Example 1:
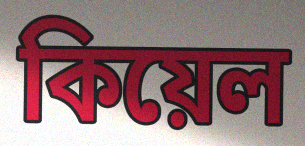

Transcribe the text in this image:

কিয়েল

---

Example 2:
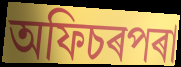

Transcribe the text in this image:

অফিচৰপৰা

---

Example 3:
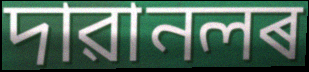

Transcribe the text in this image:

দাৱানলৰ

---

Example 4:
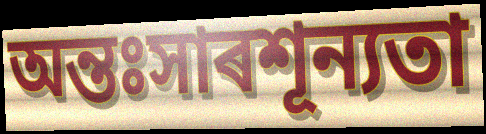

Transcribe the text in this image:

অন্তঃসাৰশূন্যতা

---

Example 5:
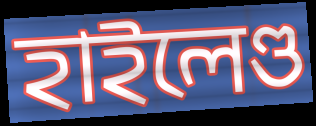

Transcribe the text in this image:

হাইলেণ্ড